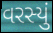
વરસ્યું